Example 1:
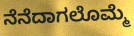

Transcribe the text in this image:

ನೆನೆದಾಗಲೊಮ್ಮೆ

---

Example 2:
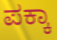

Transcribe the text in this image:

ಪಕ್ಕಾ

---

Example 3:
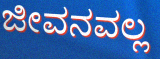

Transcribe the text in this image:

ಜೀವನವಲ್ಲ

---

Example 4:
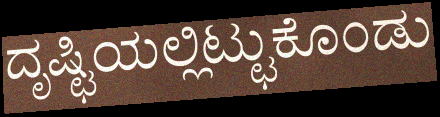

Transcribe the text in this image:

ದೃಷ್ಟಿಯಲ್ಲಿಟ್ಟುಕೊಂಡು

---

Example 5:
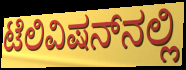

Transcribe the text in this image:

ಟೆಲಿವಿಷನ್‌ನಲ್ಲಿ